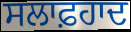
ਸਲਾਫ਼ਹਾਦ